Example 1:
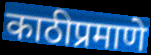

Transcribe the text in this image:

काठीप्रमाणे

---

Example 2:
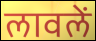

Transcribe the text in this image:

लावलें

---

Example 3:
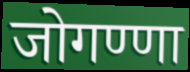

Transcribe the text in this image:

जोगण्णा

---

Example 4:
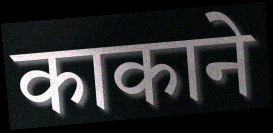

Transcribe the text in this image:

काकाने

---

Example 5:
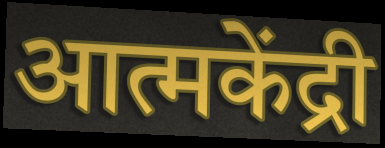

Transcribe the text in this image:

आत्मकेंद्री